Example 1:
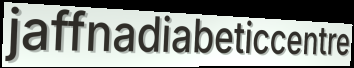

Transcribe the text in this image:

jaffnadiabeticcentre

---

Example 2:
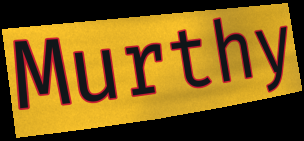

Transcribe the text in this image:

Murthy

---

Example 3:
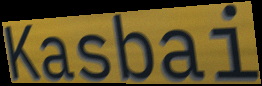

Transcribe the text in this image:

Kasbai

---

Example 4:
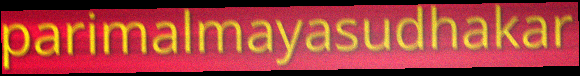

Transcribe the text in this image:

parimalmayasudhakar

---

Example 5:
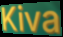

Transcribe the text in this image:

Kiva